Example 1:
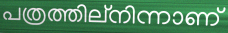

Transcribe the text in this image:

പത്രത്തില്നിന്നാണ്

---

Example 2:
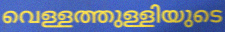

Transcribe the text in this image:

വെള്ളത്തുള്ളിയുടെ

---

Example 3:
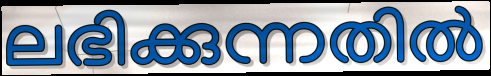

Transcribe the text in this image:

ലഭിക്കുന്നതിൽ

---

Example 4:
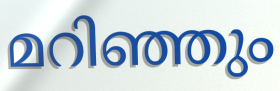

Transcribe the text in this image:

മറിഞ്ഞും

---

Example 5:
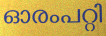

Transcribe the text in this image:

ഓരംപറ്റി